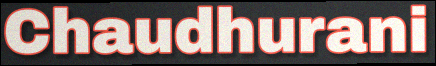
Chaudhurani